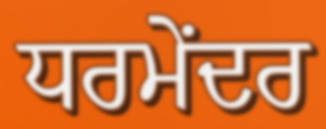
ਧਰਮੇਂਦਰ